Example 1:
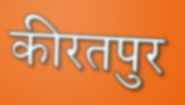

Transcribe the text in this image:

कीरतपुर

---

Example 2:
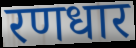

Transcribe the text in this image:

रणधार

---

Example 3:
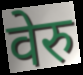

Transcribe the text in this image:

वेरु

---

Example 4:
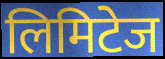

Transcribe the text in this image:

लिमिटेज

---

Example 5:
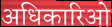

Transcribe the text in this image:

अधिकारिओ